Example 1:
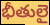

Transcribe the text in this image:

భీతులై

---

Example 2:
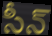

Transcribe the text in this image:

సీన్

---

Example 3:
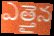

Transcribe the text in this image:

ఎత్తైన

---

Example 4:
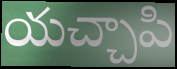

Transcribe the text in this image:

యచ్చాపి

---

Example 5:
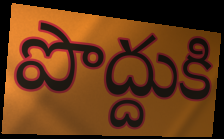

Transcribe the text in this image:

పొద్దుకి